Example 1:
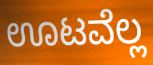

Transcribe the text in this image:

ಊಟವೆಲ್ಲ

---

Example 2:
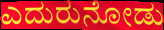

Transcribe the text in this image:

ಎದುರುನೋಡು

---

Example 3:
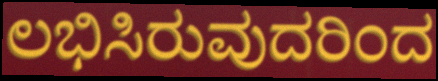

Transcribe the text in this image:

ಲಭಿಸಿರುವುದರಿಂದ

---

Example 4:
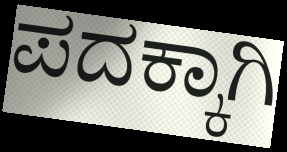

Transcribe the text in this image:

ಪದಕ್ಕಾಗಿ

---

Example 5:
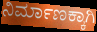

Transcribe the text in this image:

ನಿರ್ಮಾಣಕ್ಕಾಗಿ